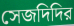
সেজদিদির